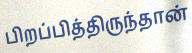
பிறப்பித்திருந்தான்